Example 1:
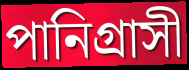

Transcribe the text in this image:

পানিগ্রাসী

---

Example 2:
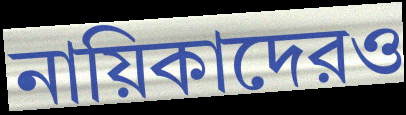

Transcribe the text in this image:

নায়িকাদেরও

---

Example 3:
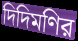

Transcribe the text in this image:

দিদিমণির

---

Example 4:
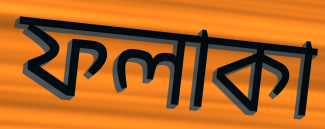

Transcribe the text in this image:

ফলাকা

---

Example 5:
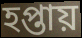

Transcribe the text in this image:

হপ্তায়